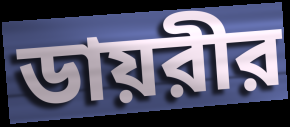
ডায়রীর